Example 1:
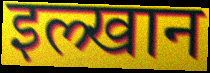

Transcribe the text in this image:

इल्खान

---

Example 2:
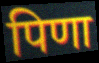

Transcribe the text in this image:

पिणा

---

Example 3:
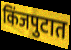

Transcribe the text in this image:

किंजपुटात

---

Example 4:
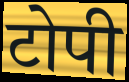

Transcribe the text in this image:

टोपी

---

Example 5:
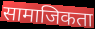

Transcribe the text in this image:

सामाजिकता